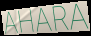
AHARA